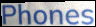
Phones